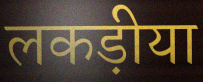
लकड़ीया